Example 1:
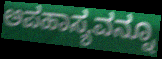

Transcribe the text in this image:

ಅಪಹಾಸ್ಯವನ್ನೂ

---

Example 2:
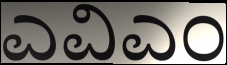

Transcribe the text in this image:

ಎವಿಎಂ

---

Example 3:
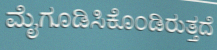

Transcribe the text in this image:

ಮೈಗೂಡಿಸಿಕೊಂಡಿರುತ್ತದೆ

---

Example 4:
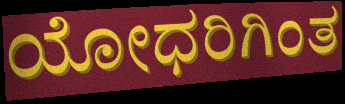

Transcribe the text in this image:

ಯೋಧರಿಗಿಂತ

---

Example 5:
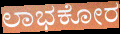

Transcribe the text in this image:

ಲಾಭಕೋರ